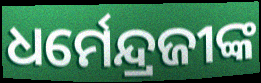
ଧର୍ମେନ୍ଦ୍ରଜୀଙ୍କ